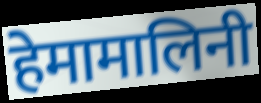
हेमामालिनी